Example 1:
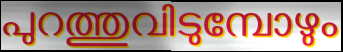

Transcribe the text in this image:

പുറത്തുവിടുമ്പോഴും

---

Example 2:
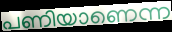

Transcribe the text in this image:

പണിയാണെന്ന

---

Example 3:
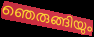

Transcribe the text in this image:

ഞെരുങ്ങിയും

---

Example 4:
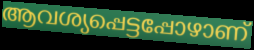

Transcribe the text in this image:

ആവശ്യപ്പെട്ടപ്പോഴാണ്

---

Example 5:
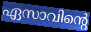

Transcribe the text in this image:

ഏസാവിന്റെ